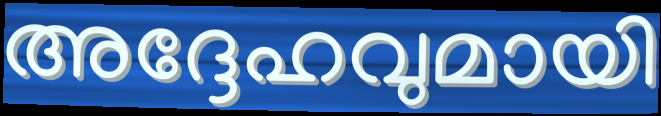
അദ്ദേഹവുമായി